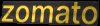
zomato